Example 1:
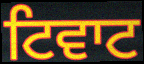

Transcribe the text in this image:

ਟਿਵਾਟ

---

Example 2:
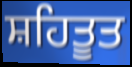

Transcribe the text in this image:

ਸ਼ਹਿਤੂਤ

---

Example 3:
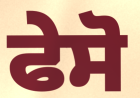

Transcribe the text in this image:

ਫੇਸੋ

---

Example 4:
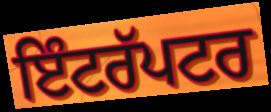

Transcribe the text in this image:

ਇੰਟਰੱਪਟਰ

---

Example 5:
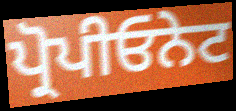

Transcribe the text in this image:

ਪ੍ਰੋਪੀਓਨੇਟ